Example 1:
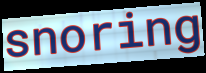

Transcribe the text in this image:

snoring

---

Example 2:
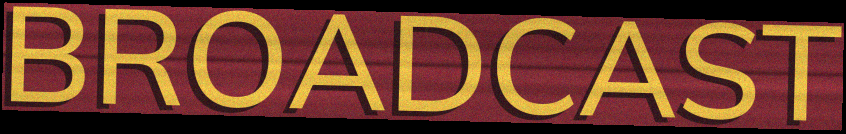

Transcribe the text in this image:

BROADCAST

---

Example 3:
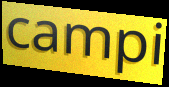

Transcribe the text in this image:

campi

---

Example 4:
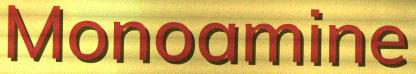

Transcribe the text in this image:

Monoamine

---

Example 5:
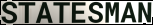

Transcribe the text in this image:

STATESMAN